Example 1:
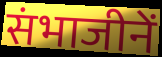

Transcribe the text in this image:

संभाजीनें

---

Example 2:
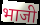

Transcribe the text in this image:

भाजी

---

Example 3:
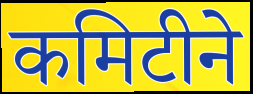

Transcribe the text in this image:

कमिटीने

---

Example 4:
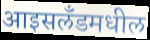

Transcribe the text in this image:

आइसलँडमधील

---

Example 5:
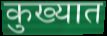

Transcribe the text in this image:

कुख्यात